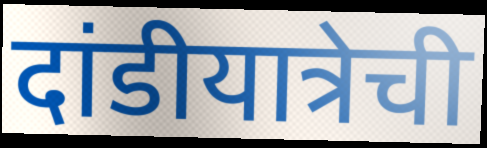
दांडीयात्रेची